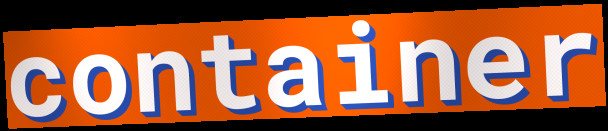
container